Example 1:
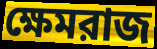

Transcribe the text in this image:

ক্ষেমরাজ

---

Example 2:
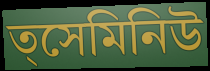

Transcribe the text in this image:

ত্সেমিনিউ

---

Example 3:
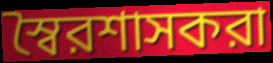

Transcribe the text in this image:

স্বৈরশাসকরা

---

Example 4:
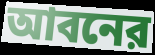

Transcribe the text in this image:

আবনের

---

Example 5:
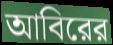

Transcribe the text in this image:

আবিরের